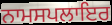
ਨਾਮਸਪਲਾਇਰ